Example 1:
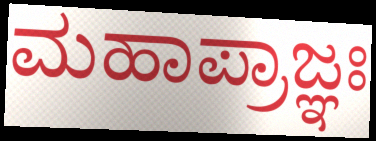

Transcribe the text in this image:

ಮಹಾಪ್ರಾಜ್ಞಃ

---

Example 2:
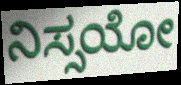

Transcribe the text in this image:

ನಿಸ್ಸಯೋ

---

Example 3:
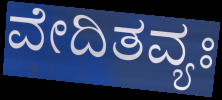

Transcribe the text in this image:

ವೇದಿತವ್ಯಃ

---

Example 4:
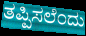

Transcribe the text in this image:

ತಪ್ಪಿಸಲೆಂದು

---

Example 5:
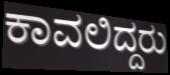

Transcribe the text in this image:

ಕಾವಲಿದ್ದರು